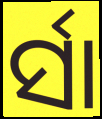
ର୍ସା